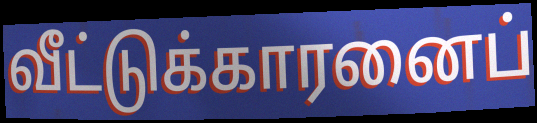
வீட்டுக்காரனைப்